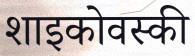
शाइकोवस्की